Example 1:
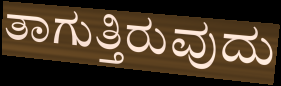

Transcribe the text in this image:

ತಾಗುತ್ತಿರುವುದು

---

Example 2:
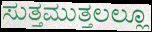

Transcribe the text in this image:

ಸುತ್ತಮುತ್ತಲಲ್ಲೂ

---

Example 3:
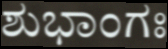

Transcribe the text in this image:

ಶುಭಾಂಗಃ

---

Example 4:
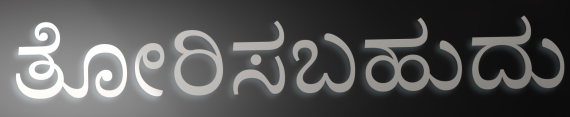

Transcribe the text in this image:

ತೋರಿಸಬಹುದು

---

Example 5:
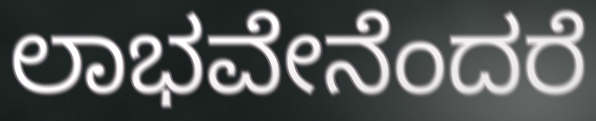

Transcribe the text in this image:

ಲಾಭವೇನೆಂದರೆ